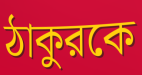
ঠাকুরকে